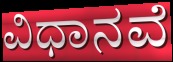
ವಿಧಾನವೆ